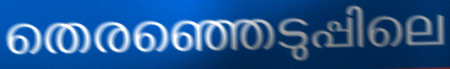
തെരഞ്ഞെടുപ്പിലെ